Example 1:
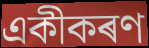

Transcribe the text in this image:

একীকৰণ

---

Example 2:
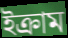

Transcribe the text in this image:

ইক্ৰাম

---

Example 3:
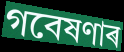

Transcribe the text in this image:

গবেষণাৰ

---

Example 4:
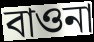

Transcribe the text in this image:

বাওনা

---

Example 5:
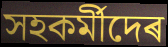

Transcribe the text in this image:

সহকৰ্মীদেৰ